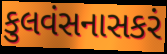
કુલવંસનાસકરં